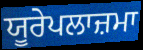
ਯੂਰੇਪਲਾਜ਼ਮਾ